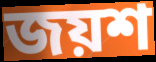
জয়শ